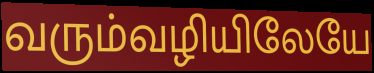
வரும்வழியிலேயே